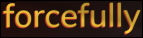
forcefully